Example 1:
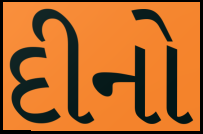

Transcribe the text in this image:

દીનો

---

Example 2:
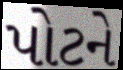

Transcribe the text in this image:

પોટને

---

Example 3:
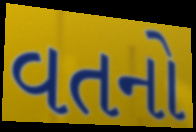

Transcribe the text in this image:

વતનો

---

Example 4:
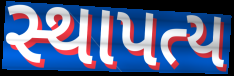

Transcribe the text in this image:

સ્થાપત્ય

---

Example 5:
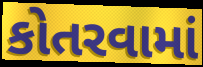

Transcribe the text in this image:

કોતરવામાં